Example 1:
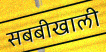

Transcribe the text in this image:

सबबीखाली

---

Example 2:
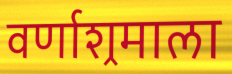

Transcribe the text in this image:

वर्णाश्रमाला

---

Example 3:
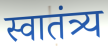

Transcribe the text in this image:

स्वातंत्र्य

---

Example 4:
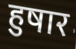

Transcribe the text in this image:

हुषार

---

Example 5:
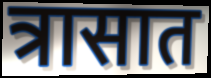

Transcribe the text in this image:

त्रासात